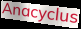
Anacyclus